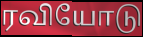
ரவியோடு